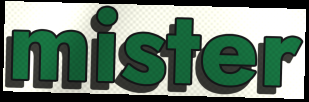
mister